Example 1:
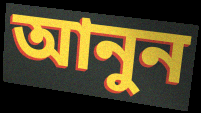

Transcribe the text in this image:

আনুন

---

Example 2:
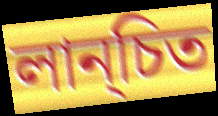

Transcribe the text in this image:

লান্চিত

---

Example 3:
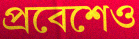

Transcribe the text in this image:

প্রবেশেও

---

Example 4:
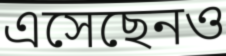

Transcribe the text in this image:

এসেছেনও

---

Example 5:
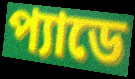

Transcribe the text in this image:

প্যাডে